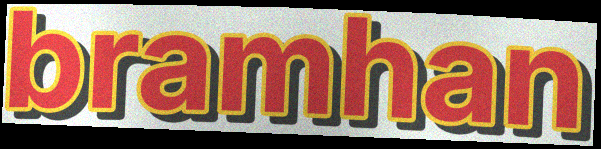
bramhan